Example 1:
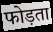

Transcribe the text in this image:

फोड़ता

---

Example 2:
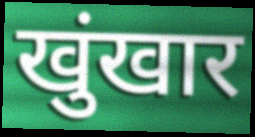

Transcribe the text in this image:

खुंखार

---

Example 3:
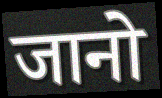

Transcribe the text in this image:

जानो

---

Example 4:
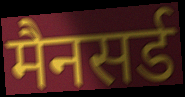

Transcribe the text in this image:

मैनसर्ड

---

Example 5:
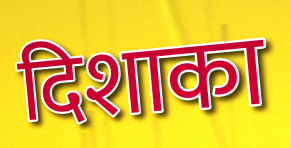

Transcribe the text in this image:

दिशाका